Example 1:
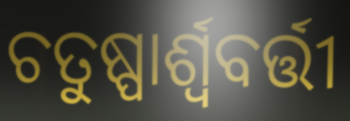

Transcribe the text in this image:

ଚତୁଷ୍ପାର୍ଶ୍ୱବର୍ତ୍ତୀ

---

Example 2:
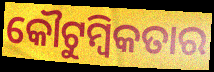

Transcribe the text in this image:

କୌଟୁମ୍ବିକତାର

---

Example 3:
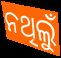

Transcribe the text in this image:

ନଥିଲୁଁ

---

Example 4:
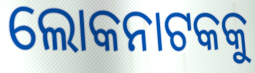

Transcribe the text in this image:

ଲୋକନାଟକକୁ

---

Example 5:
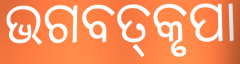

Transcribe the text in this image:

ଭଗବତ୍‌କୃପା